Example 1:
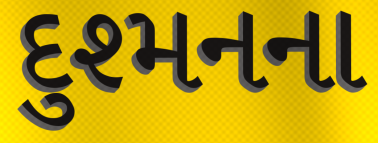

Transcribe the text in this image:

દુશ્મનના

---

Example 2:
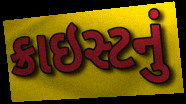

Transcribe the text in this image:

ક્રાઇસ્ટનું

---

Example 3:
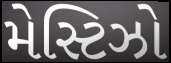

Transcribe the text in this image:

મેસ્ટિઝો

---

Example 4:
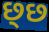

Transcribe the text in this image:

છ્છ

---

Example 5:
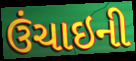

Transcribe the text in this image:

ઉંચાઇની